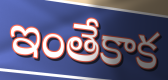
ఇంతేకాక